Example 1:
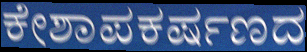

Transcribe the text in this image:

ಕೇಶಾಪಕರ್ಷಣದ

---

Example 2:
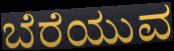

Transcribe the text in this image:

ಬೆರೆಯುವ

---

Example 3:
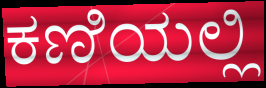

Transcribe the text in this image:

ಕಣಿಯಲ್ಲಿ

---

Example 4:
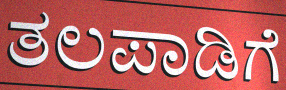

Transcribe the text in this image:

ತಲಪಾಡಿಗೆ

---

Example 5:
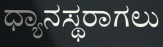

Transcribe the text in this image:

ಧ್ಯಾನಸ್ಥರಾಗಲು